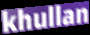
khullan